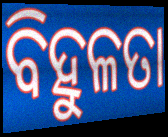
ବିହୁଳତା